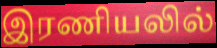
இரணியலில்